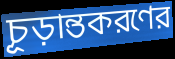
চূড়ান্তকরণের